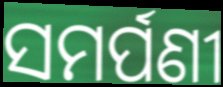
ସମର୍ପଣୀ